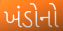
ખંડોનો